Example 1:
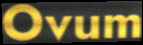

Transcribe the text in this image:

Ovum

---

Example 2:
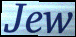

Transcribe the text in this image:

Jew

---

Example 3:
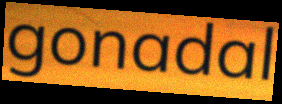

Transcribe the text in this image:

gonadal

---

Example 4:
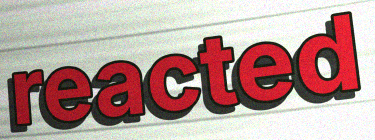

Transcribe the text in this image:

reacted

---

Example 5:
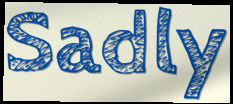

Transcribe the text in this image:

Sadly